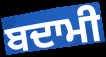
ਬਦਾਮੀ